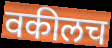
वकीलच